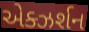
એક્ઝર્શન